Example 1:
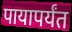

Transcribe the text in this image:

पायापर्यंत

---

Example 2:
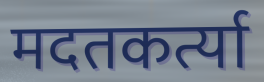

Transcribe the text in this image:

मदतकर्त्या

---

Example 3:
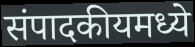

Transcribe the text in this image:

संपादकीयमध्ये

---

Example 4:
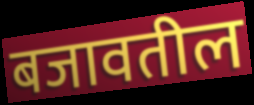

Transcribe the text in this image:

बजावतील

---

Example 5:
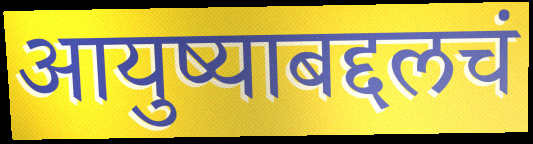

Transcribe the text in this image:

आयुष्याबद्दलचं